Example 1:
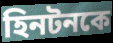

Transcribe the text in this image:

হিনটনকে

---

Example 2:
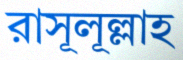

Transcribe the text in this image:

রাসূলূল্লাহ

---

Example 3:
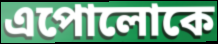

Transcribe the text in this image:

এপোলোকে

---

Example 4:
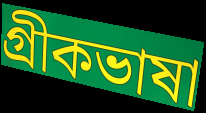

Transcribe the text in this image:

গ্রীকভাষা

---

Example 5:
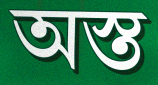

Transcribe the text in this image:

অস্ত